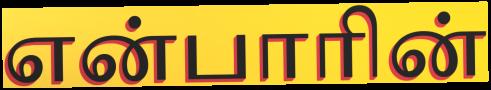
என்பாரின்